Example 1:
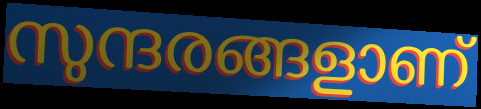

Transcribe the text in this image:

സുന്ദരങ്ങളാണ്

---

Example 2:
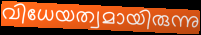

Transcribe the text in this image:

വിധേയത്വമായിരുന്നു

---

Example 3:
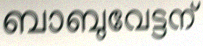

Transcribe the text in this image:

ബാബുവേട്ടന്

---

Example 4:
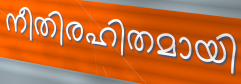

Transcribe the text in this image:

നീതിരഹിതമായി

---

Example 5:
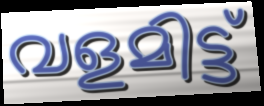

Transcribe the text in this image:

വളമിട്ട്